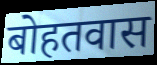
बोहतवास